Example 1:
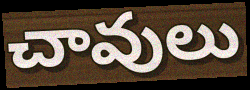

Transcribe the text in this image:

చావులు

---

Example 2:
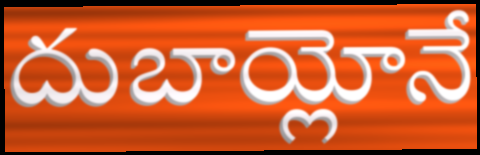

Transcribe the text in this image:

దుబాయ్లోనే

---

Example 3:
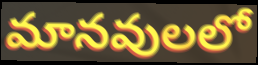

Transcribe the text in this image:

మానవులలో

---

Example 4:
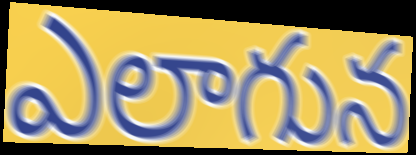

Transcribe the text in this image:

ఎలాగున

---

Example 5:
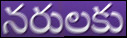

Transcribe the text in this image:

నరులకు